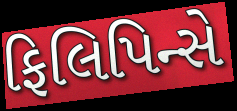
ફિલિપિન્સે